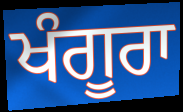
ਖੰਗੂਰਾ